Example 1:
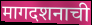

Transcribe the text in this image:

मागदशनाची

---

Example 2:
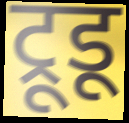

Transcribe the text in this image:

ट्रूडू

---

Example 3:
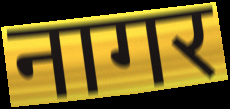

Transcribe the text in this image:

नागर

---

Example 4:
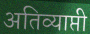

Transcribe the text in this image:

अतिव्याप्ती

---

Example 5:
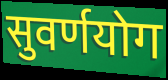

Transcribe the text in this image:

सुवर्णयोग